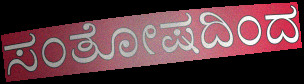
ಸಂತೋಷದಿಂದ